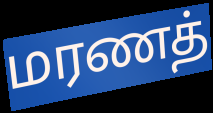
மரணத்